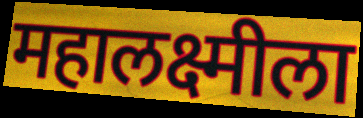
महालक्ष्मीला